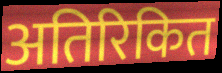
अतिरिकित